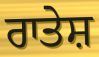
ਰਾਤੇਸ਼